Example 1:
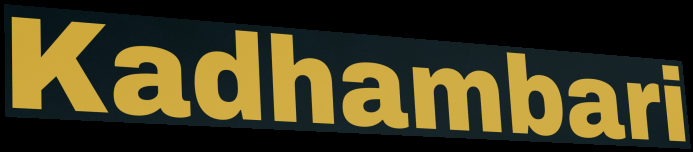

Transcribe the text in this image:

Kadhambari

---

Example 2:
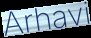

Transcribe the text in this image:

Arhavi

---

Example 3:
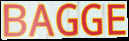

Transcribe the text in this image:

BAGGE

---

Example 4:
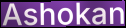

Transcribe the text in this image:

Ashokan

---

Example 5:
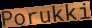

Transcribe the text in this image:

Porukki